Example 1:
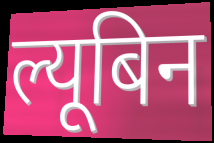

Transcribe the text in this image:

ल्यूबिन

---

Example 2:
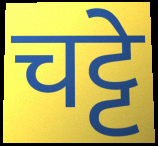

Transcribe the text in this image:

चट्टे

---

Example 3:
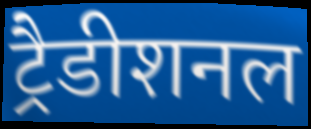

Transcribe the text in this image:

ट्रैडीशनल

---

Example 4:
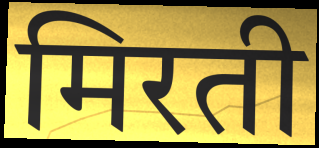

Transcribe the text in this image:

मिरती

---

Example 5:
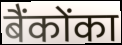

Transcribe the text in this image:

बैंकोंका